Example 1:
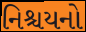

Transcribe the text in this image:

નિશ્ચયનો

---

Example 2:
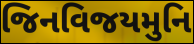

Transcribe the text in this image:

જિનવિજયમુનિ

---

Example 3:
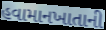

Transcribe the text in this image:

હવામાનખાતાની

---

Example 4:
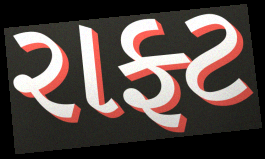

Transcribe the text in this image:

રાફ્ટ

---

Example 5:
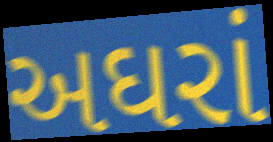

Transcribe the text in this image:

અઘરાં